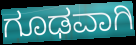
ಗೂಢವಾಗಿ